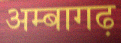
अम्बागढ़